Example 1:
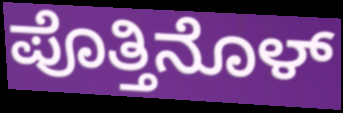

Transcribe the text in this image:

ಪೊತ್ತಿನೊಳ್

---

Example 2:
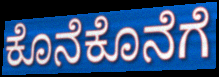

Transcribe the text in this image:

ಕೊನೆಕೊನೆಗೆ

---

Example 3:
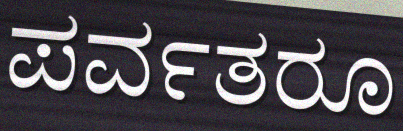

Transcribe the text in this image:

ಪರ್ವತರೂ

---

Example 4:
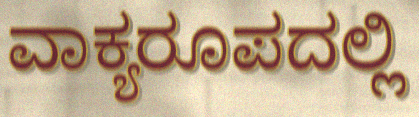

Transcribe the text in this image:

ವಾಕ್ಯರೂಪದಲ್ಲಿ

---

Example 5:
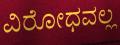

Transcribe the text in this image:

ವಿರೋಧವಲ್ಲ